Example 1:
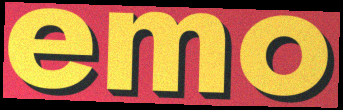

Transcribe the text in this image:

emo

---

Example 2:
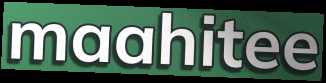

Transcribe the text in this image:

maahitee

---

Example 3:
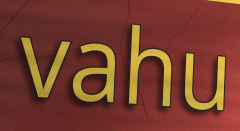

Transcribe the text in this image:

vahu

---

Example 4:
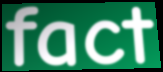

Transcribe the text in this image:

fact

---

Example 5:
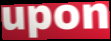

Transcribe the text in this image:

upon